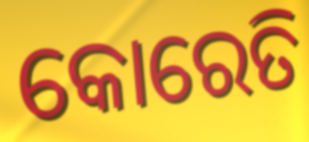
କୋରେତି